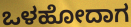
ಒಳಹೋದಾಗ